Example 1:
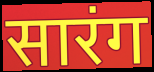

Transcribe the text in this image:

सारंग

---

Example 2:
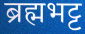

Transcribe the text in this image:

ब्रह्मभट्ट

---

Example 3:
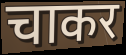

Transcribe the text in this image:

चाकर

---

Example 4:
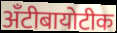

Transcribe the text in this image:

अँटीबायोटीक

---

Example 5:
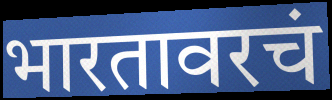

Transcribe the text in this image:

भारतावरचं